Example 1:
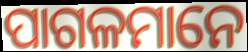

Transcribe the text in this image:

ପାଗଳମାନେ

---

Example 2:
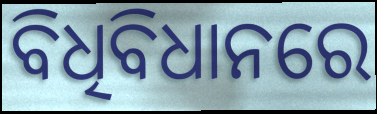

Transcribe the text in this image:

ବିଧିବିଧାନରେ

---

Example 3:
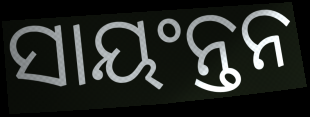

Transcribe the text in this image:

ସାୟଂନ୍ତନ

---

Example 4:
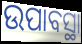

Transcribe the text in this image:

ଉପାବସ୍ଥା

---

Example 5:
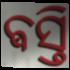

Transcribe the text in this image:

ଵସ୍ତି